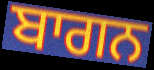
ਬਾਗਨ